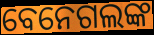
ବେନେଗଲଙ୍କ